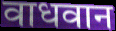
वाधवान